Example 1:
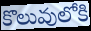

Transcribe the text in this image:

కొలువులోకి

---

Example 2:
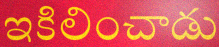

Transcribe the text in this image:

ఇకిలించాడు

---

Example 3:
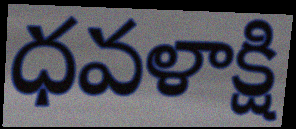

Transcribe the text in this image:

ధవళాక్షి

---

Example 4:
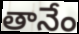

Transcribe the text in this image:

తానేం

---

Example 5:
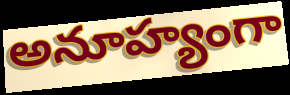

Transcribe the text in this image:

అనూహ్యంగా